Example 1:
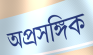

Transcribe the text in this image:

অপ্রসঙ্গিক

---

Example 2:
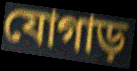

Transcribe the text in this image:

যোগাড়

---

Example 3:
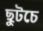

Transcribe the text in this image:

ছুটচে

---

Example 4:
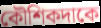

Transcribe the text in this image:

কৌশিকদাকে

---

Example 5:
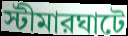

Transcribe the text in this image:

স্টীমারঘাটে